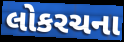
લોકરચના